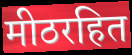
मीठरहित